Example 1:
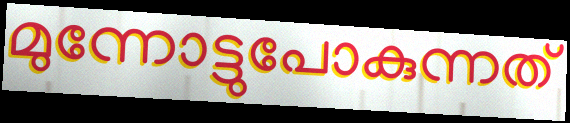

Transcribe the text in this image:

മുന്നോട്ടുപോകുന്നത്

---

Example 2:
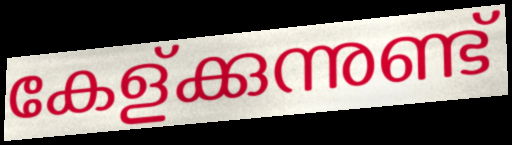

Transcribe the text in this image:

കേള്ക്കുന്നുണ്ട്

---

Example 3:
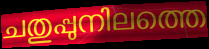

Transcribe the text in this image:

ചതുപ്പുനിലത്തെ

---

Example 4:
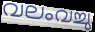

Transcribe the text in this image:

വലംവച്ചു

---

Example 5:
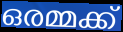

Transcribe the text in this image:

ഒരമ്മക്ക്